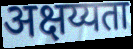
अक्षय्यता